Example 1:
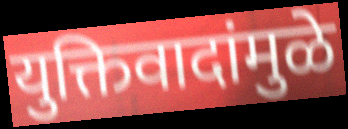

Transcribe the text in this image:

युक्तिवादांमुळे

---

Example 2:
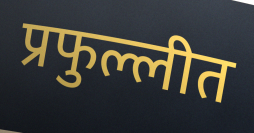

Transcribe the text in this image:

प्रफुल्लीत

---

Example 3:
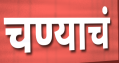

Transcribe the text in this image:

चण्याचं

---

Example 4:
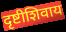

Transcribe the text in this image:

दृष्टीशिवाय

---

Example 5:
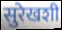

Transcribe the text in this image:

सुरेखशी